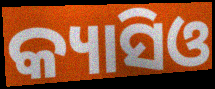
କ୍ୟାସିଓ